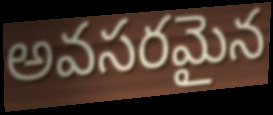
అవసరమైన